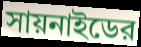
সায়নাইডের